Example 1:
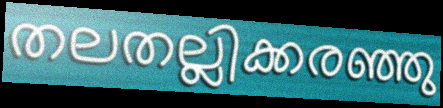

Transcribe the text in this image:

തലതല്ലിക്കരഞ്ഞു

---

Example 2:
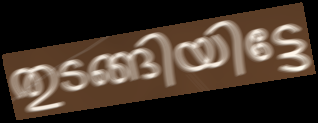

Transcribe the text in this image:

തുടങ്ങിയിട്ടേ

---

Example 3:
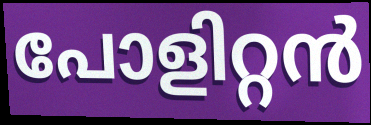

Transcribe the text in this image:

പോളിറ്റൻ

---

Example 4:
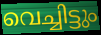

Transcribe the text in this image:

വെച്ചിട്ടും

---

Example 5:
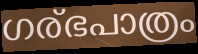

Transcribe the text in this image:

ഗര്ഭപാത്രം